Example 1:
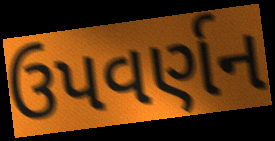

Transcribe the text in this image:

ઉપવર્ણન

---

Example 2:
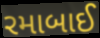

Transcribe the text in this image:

રમાબાઈ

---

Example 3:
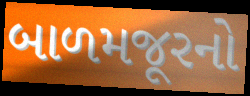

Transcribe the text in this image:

બાળમજૂરનો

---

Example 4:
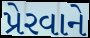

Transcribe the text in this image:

પ્રેરવાને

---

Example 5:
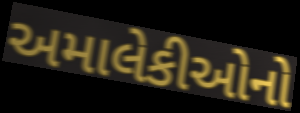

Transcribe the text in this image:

અમાલેકીઓનો